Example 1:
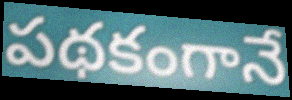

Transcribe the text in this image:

పథకంగానే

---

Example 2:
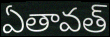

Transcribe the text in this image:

ఏతావత్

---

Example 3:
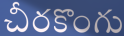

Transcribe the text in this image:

చీరకొంగు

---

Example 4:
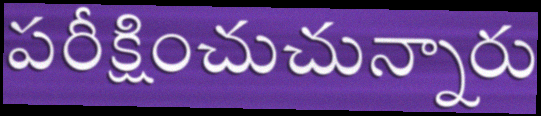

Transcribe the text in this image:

పరీక్షించుచున్నారు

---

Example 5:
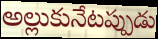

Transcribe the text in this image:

అల్లుకునేటప్పుడు